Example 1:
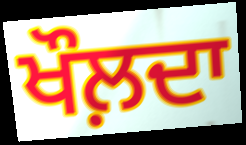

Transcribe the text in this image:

ਖੌਲ਼ਦਾ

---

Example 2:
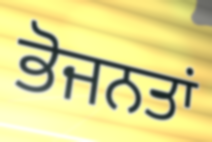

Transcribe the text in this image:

ਭੋਜਨਤਾਂ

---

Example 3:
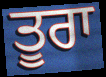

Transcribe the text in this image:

ਤੂਰਾ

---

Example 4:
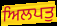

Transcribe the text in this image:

ਅਿਲਪਤੁ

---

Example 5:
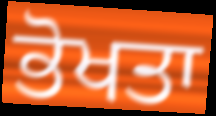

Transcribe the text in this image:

ਭੋਖਤਾ